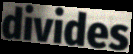
divides